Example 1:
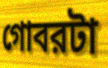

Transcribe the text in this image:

গোবরটা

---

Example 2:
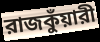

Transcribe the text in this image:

রাজকুঁয়ারী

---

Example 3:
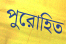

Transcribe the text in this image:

পুরোহিত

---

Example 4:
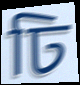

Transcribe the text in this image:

ঢি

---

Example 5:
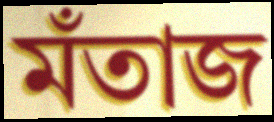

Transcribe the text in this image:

মঁতাজ